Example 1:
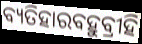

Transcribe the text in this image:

ବ୍ୟତିହାରବହୁବ୍ରୀହି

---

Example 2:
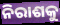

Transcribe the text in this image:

ନିରାଶକୁ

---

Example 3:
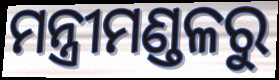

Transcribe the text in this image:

ମନ୍ତ୍ରୀମଣ୍ଡଳରୁ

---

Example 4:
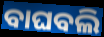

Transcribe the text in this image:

ବାଘବଲି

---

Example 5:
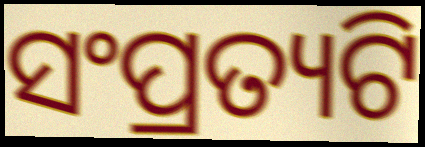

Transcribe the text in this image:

ସଂପ୍ରତ୍ୟଟି